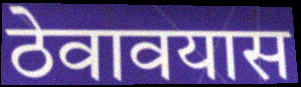
ठेवावयास